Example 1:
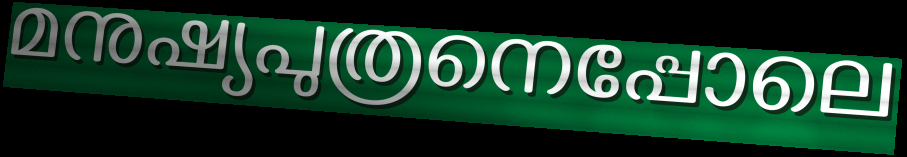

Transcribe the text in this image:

മനുഷ്യപുത്രനെപ്പോലെ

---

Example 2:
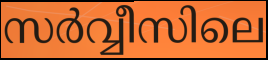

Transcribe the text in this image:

സർവ്വീസിലെ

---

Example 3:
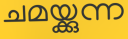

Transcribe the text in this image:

ചമയ്ക്കുന്ന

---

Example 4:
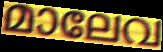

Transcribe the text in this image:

മാലേവ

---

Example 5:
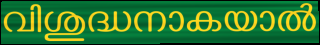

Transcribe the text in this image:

വിശുദ്ധനാകയാൽ